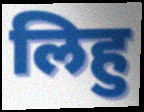
लिहु